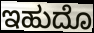
ಇಹುದೊ